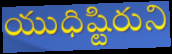
యుధిష్టిరుని